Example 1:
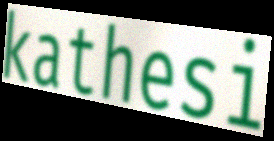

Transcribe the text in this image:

kathesi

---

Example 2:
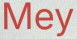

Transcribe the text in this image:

Mey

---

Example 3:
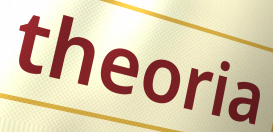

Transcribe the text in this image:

theoria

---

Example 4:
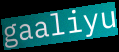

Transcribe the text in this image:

gaaliyu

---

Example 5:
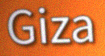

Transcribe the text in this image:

Giza